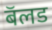
बॅलड